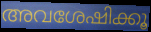
അവശേഷിക്കൂ